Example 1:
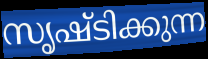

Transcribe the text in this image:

സൃഷ്ടിക്കുന്ന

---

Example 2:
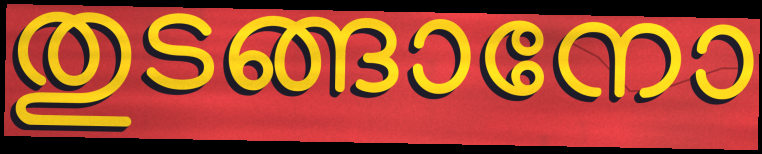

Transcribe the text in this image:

തുടങ്ങാനോ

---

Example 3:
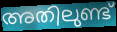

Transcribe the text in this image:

അതിലുണ്ട്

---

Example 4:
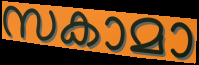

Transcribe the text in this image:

സകാമാ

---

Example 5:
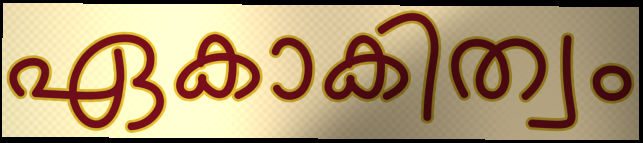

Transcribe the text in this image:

ഏകാകിത്വം